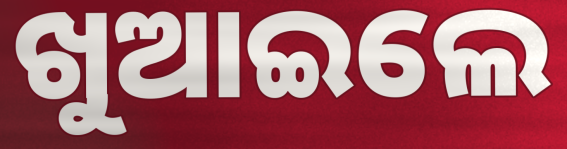
ଖୁଆଇଲେ